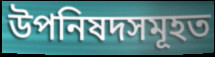
উপনিষদসমূহত